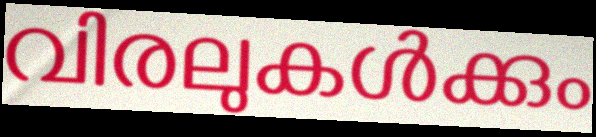
വിരലുകൾക്കും